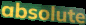
absolute